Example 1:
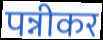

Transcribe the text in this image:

पन्नीकर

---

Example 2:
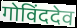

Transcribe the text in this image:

गोविंददेव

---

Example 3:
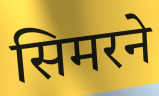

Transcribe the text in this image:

सिमरने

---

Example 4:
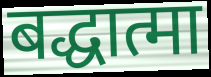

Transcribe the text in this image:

बद्धात्मा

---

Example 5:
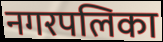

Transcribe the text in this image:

नगरपलिका